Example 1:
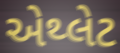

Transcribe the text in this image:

એથ્લેટ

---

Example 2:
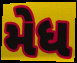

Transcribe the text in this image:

મેધ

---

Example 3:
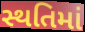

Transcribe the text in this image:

સ્થતિમાં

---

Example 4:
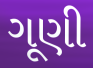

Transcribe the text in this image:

ગૂણી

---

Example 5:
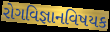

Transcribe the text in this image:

રોગવિજ્ઞાનવિષયક